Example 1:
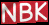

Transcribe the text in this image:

NBK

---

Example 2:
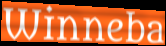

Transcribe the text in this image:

Winneba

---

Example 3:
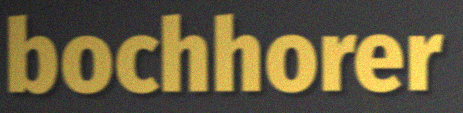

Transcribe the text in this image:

bochhorer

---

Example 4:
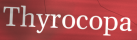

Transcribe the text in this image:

Thyrocopa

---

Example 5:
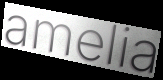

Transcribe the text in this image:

amelia